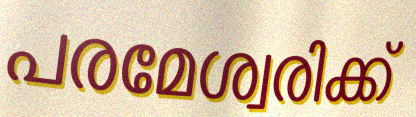
പരമേശ്വരിക്ക്